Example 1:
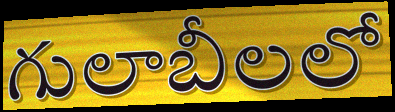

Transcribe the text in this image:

గులాబీలలో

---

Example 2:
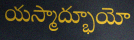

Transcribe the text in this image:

యస్మాద్భూయో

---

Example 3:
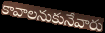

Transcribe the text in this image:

కావాలనుకునేవారు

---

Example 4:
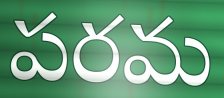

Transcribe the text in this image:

పరమ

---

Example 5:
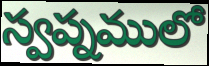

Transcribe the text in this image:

స్వప్నములో